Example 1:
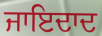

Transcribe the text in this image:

ਜਾਇਦਾਦ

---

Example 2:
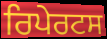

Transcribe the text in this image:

ਰਿਪੇਰਟਸ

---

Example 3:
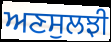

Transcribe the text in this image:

ਅਣਸੁਲਝੀ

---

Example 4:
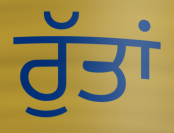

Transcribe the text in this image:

ਰੁੱਤਾਂ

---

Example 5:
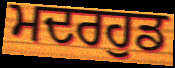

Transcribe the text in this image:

ਮਦਰਹੁਡ